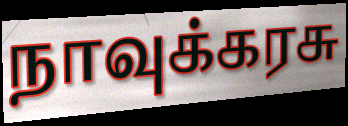
நாவுக்கரசு